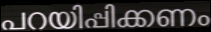
പറയിപ്പിക്കണം